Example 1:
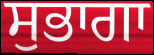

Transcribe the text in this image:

ਸੁਭਾਗਾ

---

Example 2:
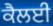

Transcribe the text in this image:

ਕੈਲਈ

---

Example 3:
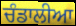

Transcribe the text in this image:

ਚੰਡਾਲੀਆ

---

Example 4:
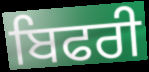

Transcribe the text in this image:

ਬਿਫਰੀ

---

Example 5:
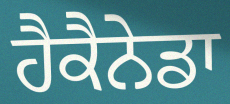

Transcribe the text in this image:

ਹੈਕੈਨੇਡਾ